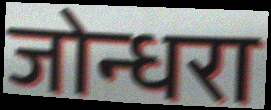
जोन्धरा